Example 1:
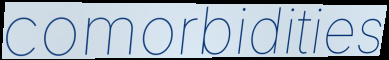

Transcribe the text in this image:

comorbidities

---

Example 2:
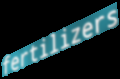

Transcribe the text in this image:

fertilizers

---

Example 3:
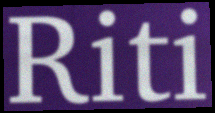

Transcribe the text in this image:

Riti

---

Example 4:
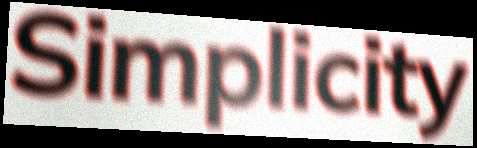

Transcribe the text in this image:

Simplicity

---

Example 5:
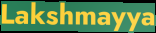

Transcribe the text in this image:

Lakshmayya